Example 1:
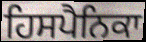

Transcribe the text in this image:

ਹਿਸਪੈਨਿਕਾ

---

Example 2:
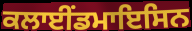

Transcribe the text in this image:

ਕਲਾਈਂਡਮਾਇਸਿਨ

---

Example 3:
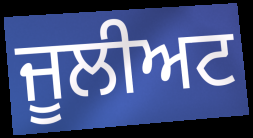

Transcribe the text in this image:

ਜੂਲੀਅਟ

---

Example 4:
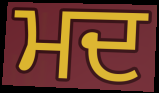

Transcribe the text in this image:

ਮਦ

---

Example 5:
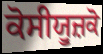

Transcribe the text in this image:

ਕੋਸੀਯੂਜ਼ਕੋ